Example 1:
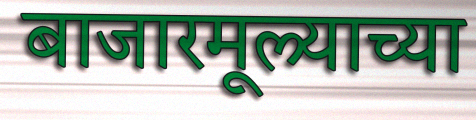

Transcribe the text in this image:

बाजारमूल्याच्या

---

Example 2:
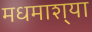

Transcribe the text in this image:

मधमाश्या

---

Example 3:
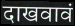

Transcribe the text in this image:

दाखवावं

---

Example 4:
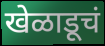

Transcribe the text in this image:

खेळाडूचं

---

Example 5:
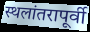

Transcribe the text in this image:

स्थलांतरापूर्वी